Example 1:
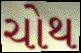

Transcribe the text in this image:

ચોથ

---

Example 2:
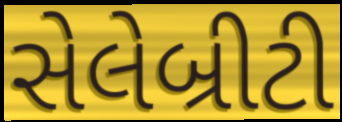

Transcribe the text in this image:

સેલેબ્રીટી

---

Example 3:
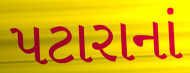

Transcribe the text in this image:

પટારાનાં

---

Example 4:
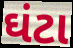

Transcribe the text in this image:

ઘંટા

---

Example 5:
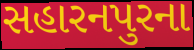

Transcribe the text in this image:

સહારનપુરના